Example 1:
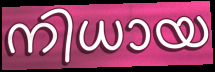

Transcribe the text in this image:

നിധായ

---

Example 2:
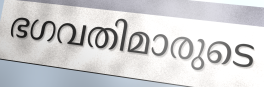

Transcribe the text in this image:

ഭഗവതിമാരുടെ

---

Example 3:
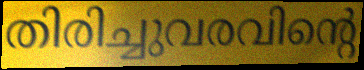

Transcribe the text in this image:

തിരിച്ചുവരവിന്റെ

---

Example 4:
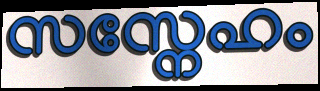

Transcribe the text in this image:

സസ്നേഹം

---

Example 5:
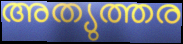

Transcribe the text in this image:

അത്യുത്തര